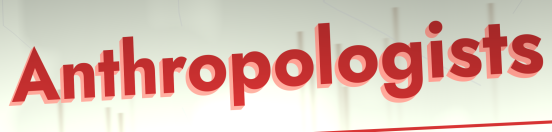
Anthropologists